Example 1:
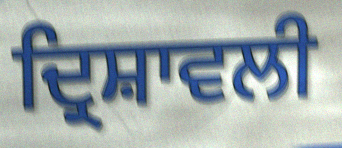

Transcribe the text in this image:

ਦ੍ਰਿਸ਼ਾਵਲੀ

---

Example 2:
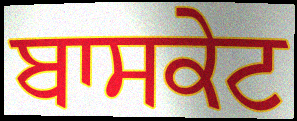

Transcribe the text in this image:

ਬਾਸਕੇਟ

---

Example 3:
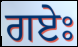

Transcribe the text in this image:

ਗਏਃ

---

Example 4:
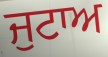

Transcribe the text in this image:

ਜੁਟਾਅ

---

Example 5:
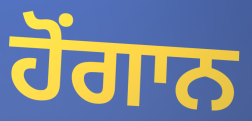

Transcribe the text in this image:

ਹੋਂਗਾਨ